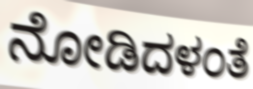
ನೋಡಿದಳಂತೆ